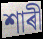
শাৰী